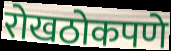
रोखठोकपणे